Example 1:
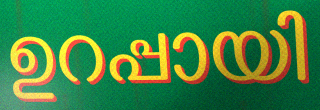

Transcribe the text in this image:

ഉറപ്പായി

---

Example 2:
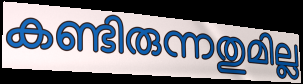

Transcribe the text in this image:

കണ്ടിരുന്നതുമില്ല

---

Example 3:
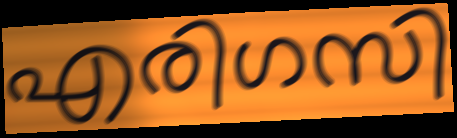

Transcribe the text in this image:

എരിഗസി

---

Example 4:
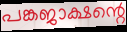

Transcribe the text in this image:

പങ്കജാക്ഷന്റെ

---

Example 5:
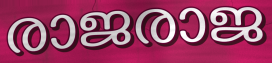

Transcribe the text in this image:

രാജരാജ